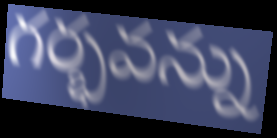
గర్భవన్ను